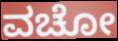
ವಚೋ